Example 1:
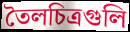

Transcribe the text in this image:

তৈলচিত্রগুলি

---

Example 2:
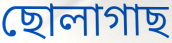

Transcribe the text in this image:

ছোলাগাছ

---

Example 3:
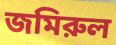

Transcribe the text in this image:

জমিরুল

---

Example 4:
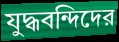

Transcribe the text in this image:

যুদ্ধবন্দিদের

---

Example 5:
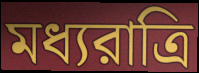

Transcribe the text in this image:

মধ্যরাত্রি